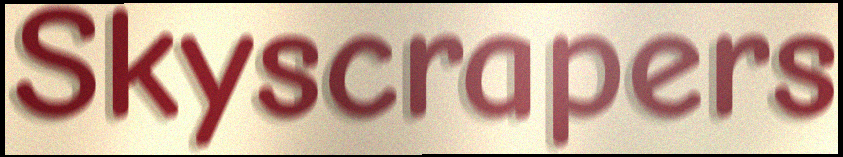
Skyscrapers